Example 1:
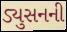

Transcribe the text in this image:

ડ્યુસનની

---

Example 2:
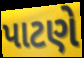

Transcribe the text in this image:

પાટણે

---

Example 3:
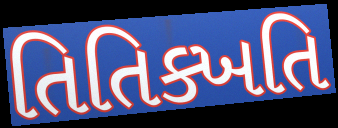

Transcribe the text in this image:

તિતિક્ખતિ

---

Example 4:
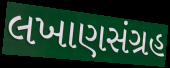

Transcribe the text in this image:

લખાણસંગ્રહ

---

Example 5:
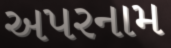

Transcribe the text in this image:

અપરનામ